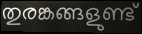
തുരങ്കങ്ങളുണ്ട്